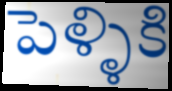
పెళ్ళికి